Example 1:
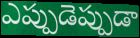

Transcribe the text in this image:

ఎప్పుడెప్పుడా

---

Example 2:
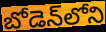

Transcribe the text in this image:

బోడెన్‌లోని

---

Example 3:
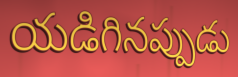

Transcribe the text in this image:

యడిగినప్పుడు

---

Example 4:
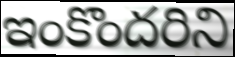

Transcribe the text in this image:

ఇంకొందరిని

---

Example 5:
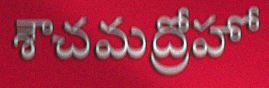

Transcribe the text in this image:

శౌచమద్రోహో